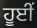
ਹੂਈਂ